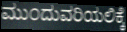
ಮುಂದುವರಿಯಲಿಕ್ಕೆ